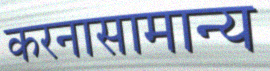
करनासामान्य